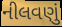
નીલવણું